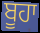
ਬੂਹਾ